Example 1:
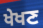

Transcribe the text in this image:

ਖੇਖਣ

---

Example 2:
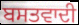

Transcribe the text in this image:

ਬਸਤਵਾਦੀ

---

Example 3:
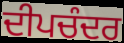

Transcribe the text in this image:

ਦੀਪਚੰਦਰ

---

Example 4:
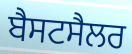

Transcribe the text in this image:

ਬੈਸਟਸੈਲਰ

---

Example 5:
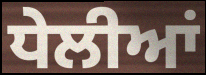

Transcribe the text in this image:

ਧੇਲੀਆਂ